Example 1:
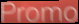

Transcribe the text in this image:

Promo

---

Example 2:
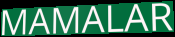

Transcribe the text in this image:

MAMALAR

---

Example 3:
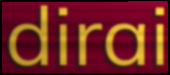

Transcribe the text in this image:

dirai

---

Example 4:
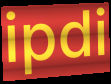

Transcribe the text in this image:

ipdi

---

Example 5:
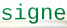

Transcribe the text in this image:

signe